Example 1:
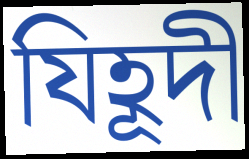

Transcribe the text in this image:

যিহূদী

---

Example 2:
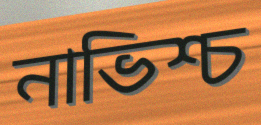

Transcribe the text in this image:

নাভিশ্চ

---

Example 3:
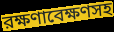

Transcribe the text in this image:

রক্ষণাবেক্ষণসহ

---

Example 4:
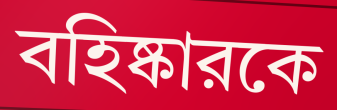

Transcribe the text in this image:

বহিষ্কারকে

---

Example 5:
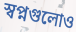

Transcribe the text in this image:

স্বপ্নগুলোও